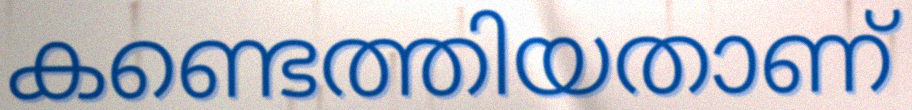
കണ്ടെത്തിയതാണ്